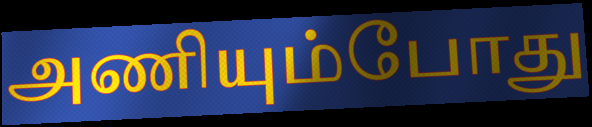
அணியும்போது